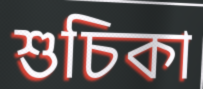
শুচিকা